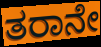
ತರಾನೇ